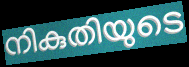
നികുതിയുടെ